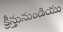
క్రీస్తునుండియు